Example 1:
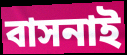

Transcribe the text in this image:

বাসনাই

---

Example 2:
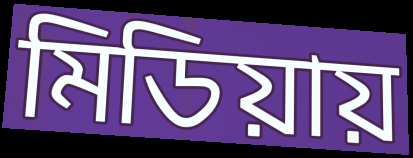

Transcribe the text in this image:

মিডিয়ায়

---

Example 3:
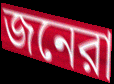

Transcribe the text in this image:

জনেরা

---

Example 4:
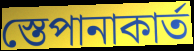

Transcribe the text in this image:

স্তেপানাকার্ত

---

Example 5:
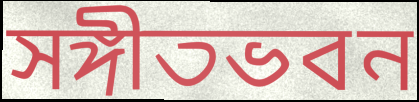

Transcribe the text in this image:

সঙ্গীতভবন